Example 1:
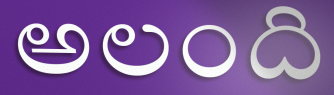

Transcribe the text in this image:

అలంది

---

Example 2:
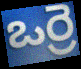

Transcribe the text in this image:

ఒర్రె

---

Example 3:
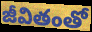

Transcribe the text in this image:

జీవితంతో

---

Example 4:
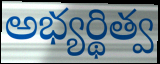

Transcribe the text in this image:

అభ్యర్థిత్వ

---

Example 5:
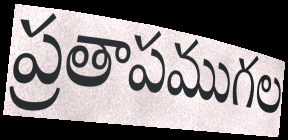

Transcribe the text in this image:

ప్రతాపముగల